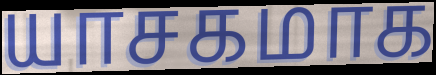
யாசகமாக